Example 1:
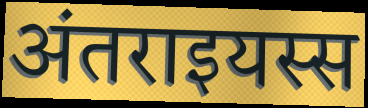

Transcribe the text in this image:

अंतराइयस्स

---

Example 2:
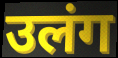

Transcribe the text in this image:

उलंग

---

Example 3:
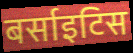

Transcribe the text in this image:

बर्साइटिस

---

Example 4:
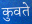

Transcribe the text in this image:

कुवते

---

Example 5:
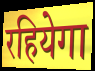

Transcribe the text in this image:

रहियेगा